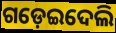
ଗଡ଼େଇଦେଲି